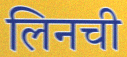
लिनची